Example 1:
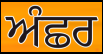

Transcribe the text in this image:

ਅੰਛਰ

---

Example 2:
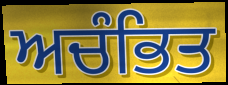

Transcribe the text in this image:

ਅਚੰਭਿਤ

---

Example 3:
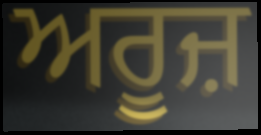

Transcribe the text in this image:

ਅਰੂਜ਼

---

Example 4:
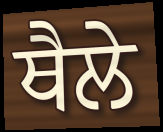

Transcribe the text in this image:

ਥੈਲੇ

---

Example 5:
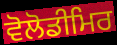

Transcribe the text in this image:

ਵੋਲੋਡੀਮਿਰ